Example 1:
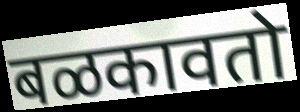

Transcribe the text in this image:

बळकावतो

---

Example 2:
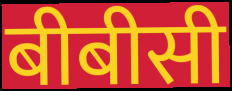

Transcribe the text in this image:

बीबीसी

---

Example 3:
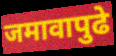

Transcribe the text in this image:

जमावापुढे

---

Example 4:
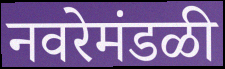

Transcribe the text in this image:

नवरेमंडळी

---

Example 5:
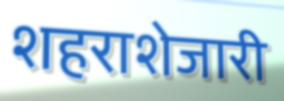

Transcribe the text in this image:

शहराशेजारी